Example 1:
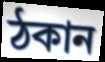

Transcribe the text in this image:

ঠকান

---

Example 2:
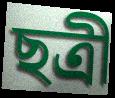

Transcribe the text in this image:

ছত্রী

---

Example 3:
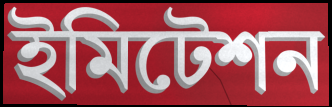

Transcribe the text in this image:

ইমিটেশন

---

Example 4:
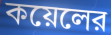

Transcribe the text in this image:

কয়েলের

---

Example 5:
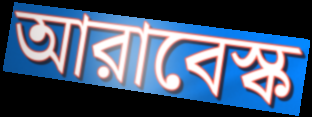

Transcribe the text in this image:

আরাবেস্ক